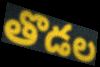
తొడల